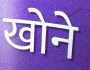
खोने